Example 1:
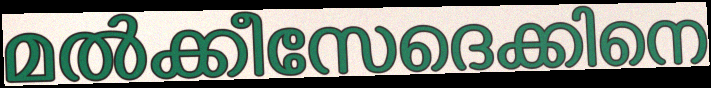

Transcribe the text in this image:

മൽക്കീസേദെക്കിനെ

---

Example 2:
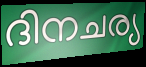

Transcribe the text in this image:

ദിനചര്യ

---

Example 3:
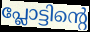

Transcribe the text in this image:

പ്ലോട്ടിന്റെ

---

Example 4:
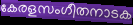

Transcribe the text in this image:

കേരളസംഗീതനാടക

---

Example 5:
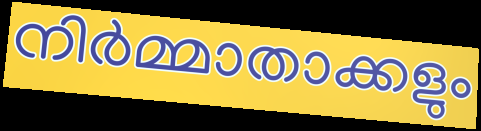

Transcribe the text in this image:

നിർമ്മാതാക്കളും